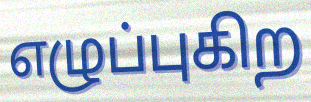
எழுப்புகிற